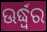
ଊର୍ଦ୍ଧ୍ଵର